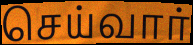
செய்வார்